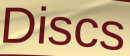
Discs